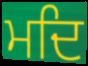
ਮਦਿ